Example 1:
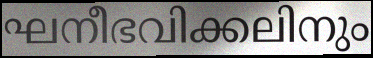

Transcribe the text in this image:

ഘനീഭവിക്കലിനും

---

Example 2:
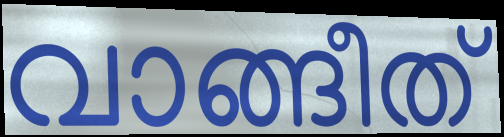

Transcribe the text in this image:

വാങ്ങീത്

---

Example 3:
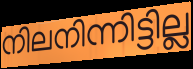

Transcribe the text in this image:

നിലനിന്നിട്ടില്ല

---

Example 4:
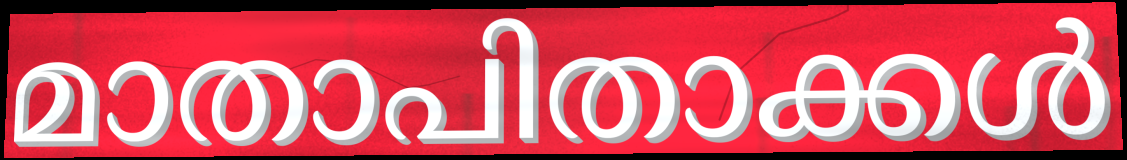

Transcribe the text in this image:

മാതാപിതാക്കൾ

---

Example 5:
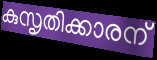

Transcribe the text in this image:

കുസൃതിക്കാരന്